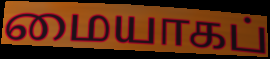
மையாகப்